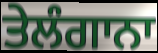
ਤੇਲੰਗਾਨਾ